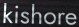
kishore